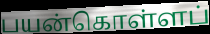
பயன்கொள்ளப்